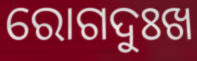
ରୋଗଦୁଃଖ